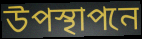
উপস্থাপনে